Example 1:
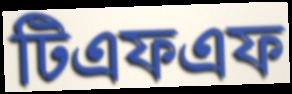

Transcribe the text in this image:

টিএফএফ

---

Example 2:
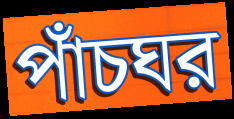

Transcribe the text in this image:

পাঁচঘর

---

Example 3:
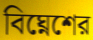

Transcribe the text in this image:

বিঘ্নেশের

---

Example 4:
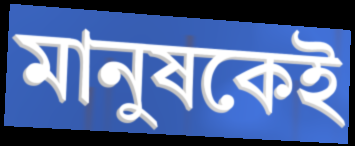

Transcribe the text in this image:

মানুষকেই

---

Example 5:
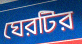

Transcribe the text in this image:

ঘেরটির